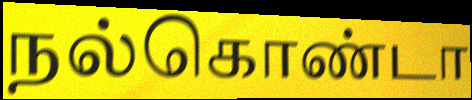
நல்கொண்டா